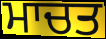
ਮਾਚਤ